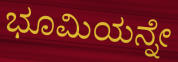
ಭೂಮಿಯನ್ನೇ